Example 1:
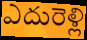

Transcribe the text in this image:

ఎదురెళ్లి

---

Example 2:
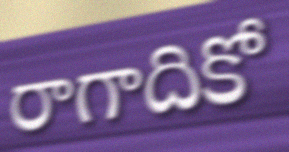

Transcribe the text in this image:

రాగాదికో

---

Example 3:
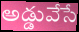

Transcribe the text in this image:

అడ్డువేసే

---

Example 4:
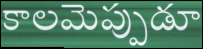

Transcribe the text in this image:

కాలమెప్పుడూ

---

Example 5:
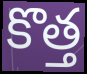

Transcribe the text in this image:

కొత్త